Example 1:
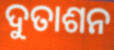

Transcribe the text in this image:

ଦୁତାଶନ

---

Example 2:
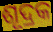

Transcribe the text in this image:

ଶୂଦ୍ରକ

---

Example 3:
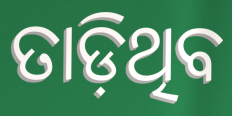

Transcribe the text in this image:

ତାଡ଼ିଥିବ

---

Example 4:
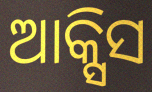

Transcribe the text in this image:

ଆକ୍ସିସ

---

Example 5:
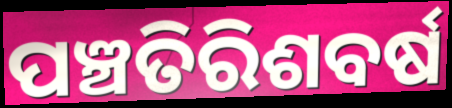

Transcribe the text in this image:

ପଞ୍ଚତିରିଶବର୍ଷ